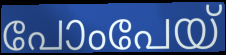
പോംപേയ്